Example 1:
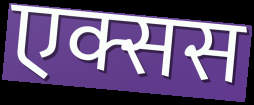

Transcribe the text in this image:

एक्सस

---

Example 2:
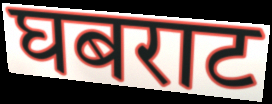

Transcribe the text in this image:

घबराट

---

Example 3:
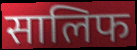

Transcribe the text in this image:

सालिफ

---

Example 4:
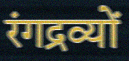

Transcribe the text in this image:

रंगद्रव्यों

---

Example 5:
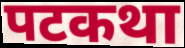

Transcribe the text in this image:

पटकथा